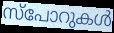
സ്പോറുകൾ